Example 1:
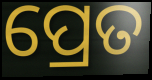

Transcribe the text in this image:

ପ୍ରେତ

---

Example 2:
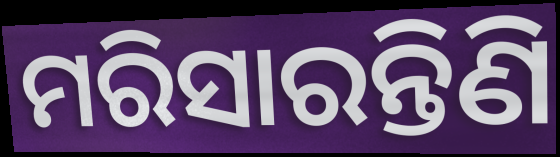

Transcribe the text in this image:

ମରିସାରନ୍ତିଣି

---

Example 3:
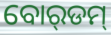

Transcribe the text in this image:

ବୋର୍‌ଡମ୍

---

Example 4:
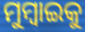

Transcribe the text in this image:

ମୁମ୍ୱାଇକୁ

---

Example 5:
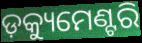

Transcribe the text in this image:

ଡ଼କ୍ୟୁମେଣ୍ଟରି